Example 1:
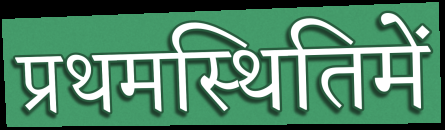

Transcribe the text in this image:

प्रथमस्थितिमें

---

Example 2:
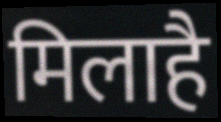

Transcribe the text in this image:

मिलाहै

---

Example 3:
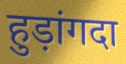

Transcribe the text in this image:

हुड़ांगदा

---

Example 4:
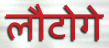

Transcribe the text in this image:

लौटोगे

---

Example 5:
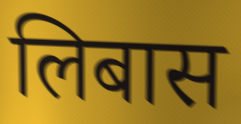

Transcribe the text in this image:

लिबास